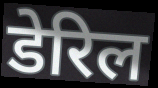
डेरिल